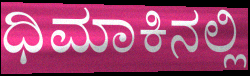
ಧಿಮಾಕಿನಲ್ಲಿ